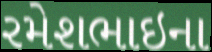
રમેશભાઇના